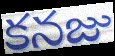
కనజు